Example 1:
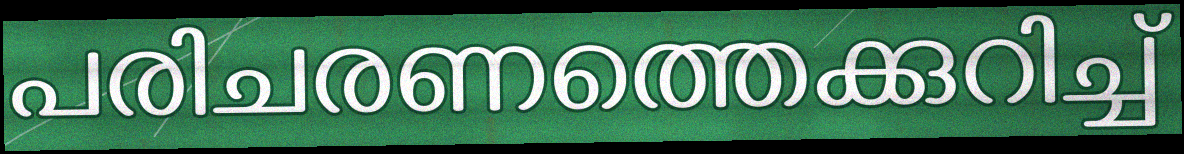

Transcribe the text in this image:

പരിചരണത്തെക്കുറിച്ച്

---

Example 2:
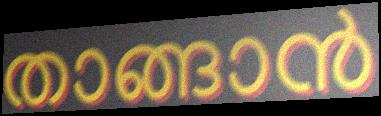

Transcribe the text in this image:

താങ്ങാൻ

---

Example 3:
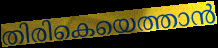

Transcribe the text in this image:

തിരികെയെത്താൻ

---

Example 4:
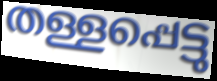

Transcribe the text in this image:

തള്ളപ്പെട്ടു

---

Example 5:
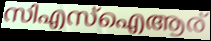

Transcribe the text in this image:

സിഎസ്ഐആര്